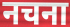
नचना